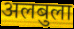
अलबुला